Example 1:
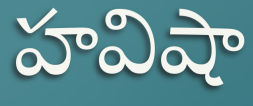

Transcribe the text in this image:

హవిషా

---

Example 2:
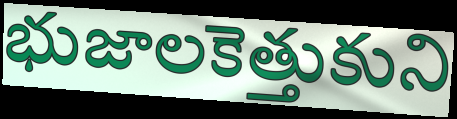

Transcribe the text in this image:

భుజాలకెత్తుకుని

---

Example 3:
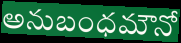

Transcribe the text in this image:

అనుబంధమౌనో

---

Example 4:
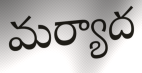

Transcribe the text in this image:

మర్యాద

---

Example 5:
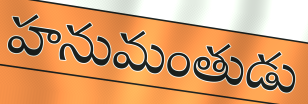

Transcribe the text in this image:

హనుమంతుడు